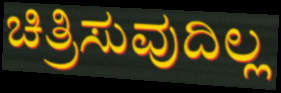
ಚಿತ್ರಿಸುವುದಿಲ್ಲ